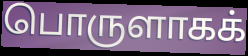
பொருளாகக்